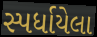
સ્પર્ધાયેલા